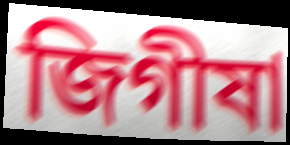
জিগীষা